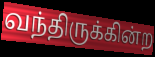
வந்திருக்கின்ற